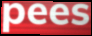
pees